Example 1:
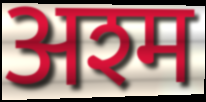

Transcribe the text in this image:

अश्म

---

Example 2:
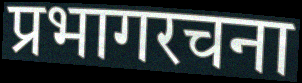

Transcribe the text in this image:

प्रभागरचना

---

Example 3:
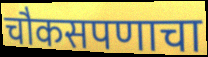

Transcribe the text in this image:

चौकसपणाचा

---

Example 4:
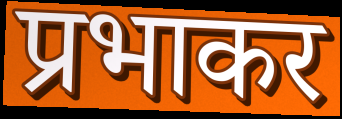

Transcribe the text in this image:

प्रभाकर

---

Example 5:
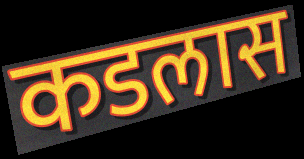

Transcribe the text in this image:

कडलास